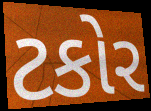
ટકોર